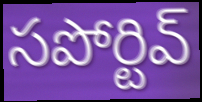
సపోర్టివ్